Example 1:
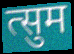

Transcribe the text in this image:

त्सुम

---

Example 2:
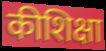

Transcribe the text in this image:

कीशिक्षा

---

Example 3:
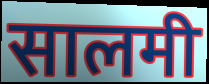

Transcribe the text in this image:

सालमी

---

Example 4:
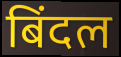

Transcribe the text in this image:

बिंदल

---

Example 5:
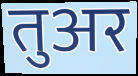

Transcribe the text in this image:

तुअर